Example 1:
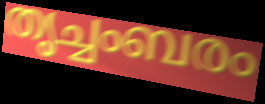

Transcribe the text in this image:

തൃച്ചംബരം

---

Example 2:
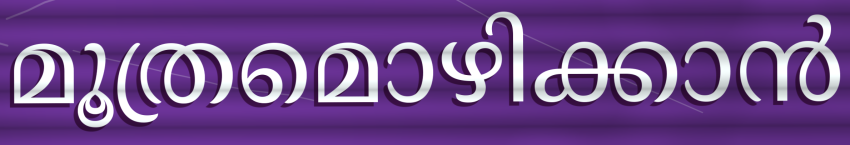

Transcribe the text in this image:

മൂത്രമൊഴിക്കാൻ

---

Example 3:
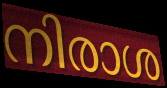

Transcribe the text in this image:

നിരാശ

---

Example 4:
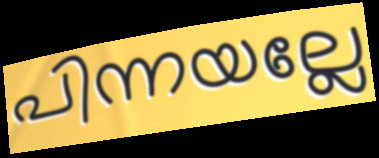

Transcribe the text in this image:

പിന്നയല്ലേ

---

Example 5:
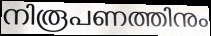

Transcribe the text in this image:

നിരൂപണത്തിനും